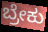
ಬ್ರೇಕು